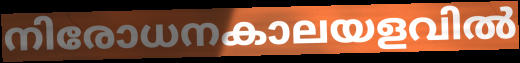
നിരോധനകാലയളവിൽ